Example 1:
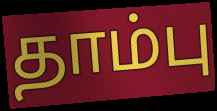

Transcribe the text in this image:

தாம்பு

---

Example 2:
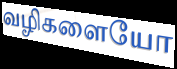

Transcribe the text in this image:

வழிகளையோ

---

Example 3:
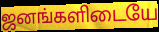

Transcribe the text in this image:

ஜனங்களிடையே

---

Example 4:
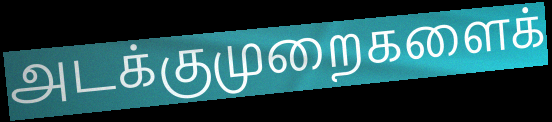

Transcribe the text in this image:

அடக்குமுறைகளைக்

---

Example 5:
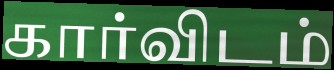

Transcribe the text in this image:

கார்விடம்